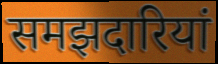
समझदारियां